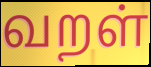
வறள்